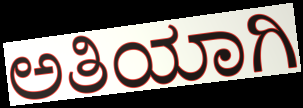
ಅತಿಯಾಗಿ